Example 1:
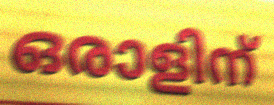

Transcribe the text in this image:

ഒരാളിന്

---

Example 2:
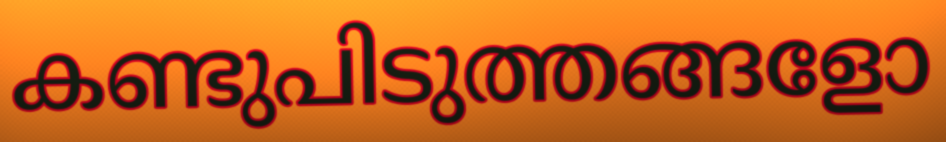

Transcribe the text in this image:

കണ്ടുപിടുത്തങ്ങളോ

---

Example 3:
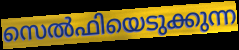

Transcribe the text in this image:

സെൽഫിയെടുക്കുന്ന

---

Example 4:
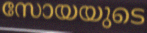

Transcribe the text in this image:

സോയയുടെ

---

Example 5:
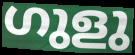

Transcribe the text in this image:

ഗുളു